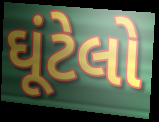
ઘૂંટેલો